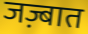
जज्ब़ात